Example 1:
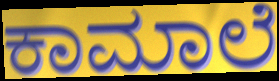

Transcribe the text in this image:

ಕಾಮಾಲೆ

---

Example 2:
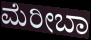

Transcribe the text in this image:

ಮೆರೀಬಾ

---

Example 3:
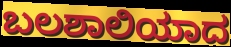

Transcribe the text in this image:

ಬಲಶಾಲಿಯಾದ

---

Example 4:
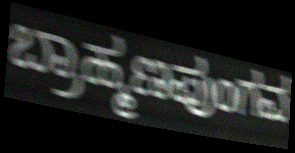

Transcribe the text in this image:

ಬ್ರಾಹ್ಮಣಪುಂಗವ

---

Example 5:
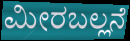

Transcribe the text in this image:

ಮೀರಬಲ್ಲನೆ